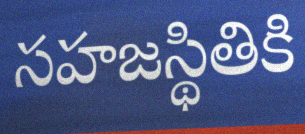
సహజస్థితికి